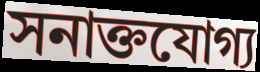
সনাক্তযোগ্য